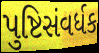
પુષ્ટિસંવર્ધક